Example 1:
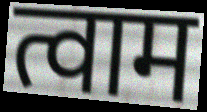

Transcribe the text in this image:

त्वाम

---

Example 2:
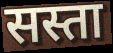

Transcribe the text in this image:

सस्ता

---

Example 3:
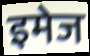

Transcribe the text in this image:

इमेज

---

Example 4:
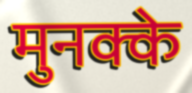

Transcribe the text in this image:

मुनक्के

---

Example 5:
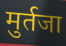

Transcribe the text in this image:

मुर्तजा